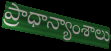
ప్రాధాన్యాంశాలు